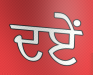
ਦਏਂ